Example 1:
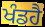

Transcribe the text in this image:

ਖੰਡਹੈ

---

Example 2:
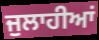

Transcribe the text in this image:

ਜੁਲਾਹੀਆਂ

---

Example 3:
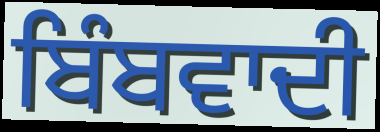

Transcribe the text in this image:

ਬਿੰਬਵਾਦੀ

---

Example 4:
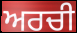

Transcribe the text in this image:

ਅਰਚੀ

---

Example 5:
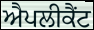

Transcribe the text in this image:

ਐਪਲੀਕੈਂਟ